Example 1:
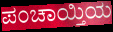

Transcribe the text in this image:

ಪಂಚಾಯ್ತಿಯ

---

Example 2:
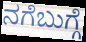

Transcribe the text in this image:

ನಗೆಬುಗ್ಗೆ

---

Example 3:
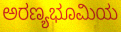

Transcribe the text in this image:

ಅರಣ್ಯಭೂಮಿಯ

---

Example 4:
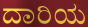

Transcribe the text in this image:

ದಾರಿಯ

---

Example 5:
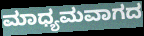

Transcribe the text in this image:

ಮಾಧ್ಯಮವಾಗದ